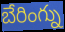
బేరింగ్ను